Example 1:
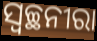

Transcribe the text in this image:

ସ୍ବଚ୍ଛନୀରା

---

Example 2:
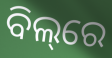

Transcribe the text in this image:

ବିଲ୍‌ରେ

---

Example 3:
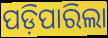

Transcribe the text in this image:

ପଡ଼ିପାରିଲା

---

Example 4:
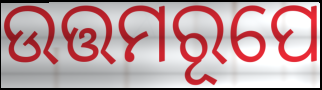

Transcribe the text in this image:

ଉତ୍ତମରୂପେ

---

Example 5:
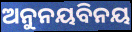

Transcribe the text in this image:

ଅନୁନୟବିନୟ